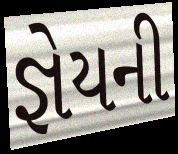
જ્ઞેયની